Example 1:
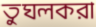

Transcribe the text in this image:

তুঘলকরা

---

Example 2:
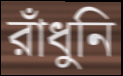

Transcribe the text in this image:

রাঁধুনি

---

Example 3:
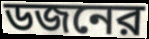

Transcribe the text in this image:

ডজনের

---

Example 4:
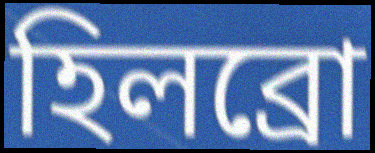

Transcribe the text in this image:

হিলব্রো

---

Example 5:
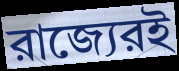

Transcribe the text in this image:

রাজ্যেরই